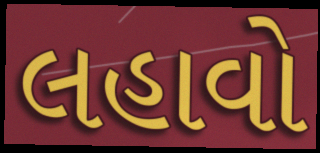
લહાવો